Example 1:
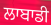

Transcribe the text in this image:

ਲਾਬਾਡੀ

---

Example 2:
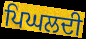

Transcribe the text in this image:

ਪਿਘਲਦੀ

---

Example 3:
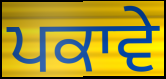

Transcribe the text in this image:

ਪਕਾਵੇ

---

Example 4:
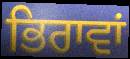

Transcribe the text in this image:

ਭਿਰਾਵਾਂ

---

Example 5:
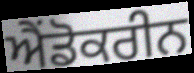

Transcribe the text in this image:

ਐਂਡੋਕਰੀਨ